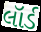
લૉર્ડ